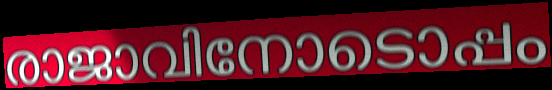
രാജാവിനോടൊപ്പം